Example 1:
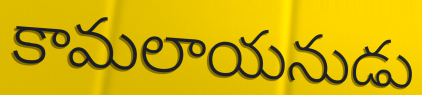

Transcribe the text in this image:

కామలాయనుడు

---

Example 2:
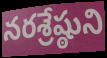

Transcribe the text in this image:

నరశ్రేష్ఠుని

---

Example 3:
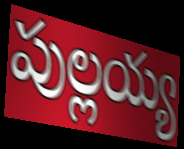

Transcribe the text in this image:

పుల్లయ్య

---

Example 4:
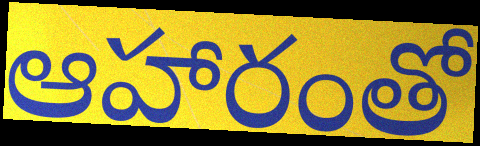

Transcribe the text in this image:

ఆహారంతో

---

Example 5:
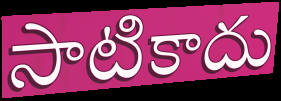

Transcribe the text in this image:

సాటికాదు